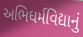
અભિધર્મવિદ્યાનું